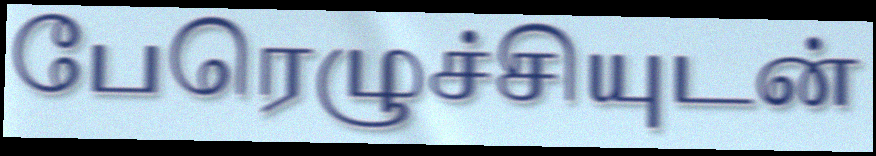
பேரெழுச்சியுடன்